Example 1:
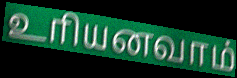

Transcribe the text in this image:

உரியனவாம்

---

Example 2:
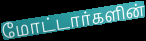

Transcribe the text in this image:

மோட்டார்களின்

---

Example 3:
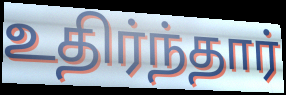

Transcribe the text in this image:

உதிர்ந்தார்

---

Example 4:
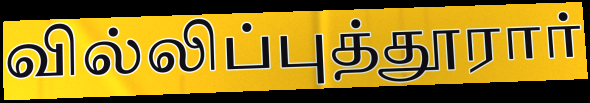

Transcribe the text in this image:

வில்லிப்புத்தூரார்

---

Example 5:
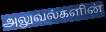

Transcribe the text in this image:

அலுவல்களின்